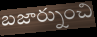
బజార్నుంచి